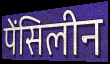
पेंसिलीन